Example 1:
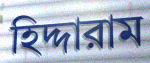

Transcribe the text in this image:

হিদ্দারাম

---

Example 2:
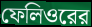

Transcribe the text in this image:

ফেলিওরের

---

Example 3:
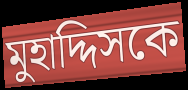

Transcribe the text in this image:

মুহাদ্দিসকে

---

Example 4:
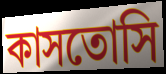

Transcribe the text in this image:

কাসতোসি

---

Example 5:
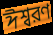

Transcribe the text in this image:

ঈশ্বরণ